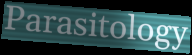
Parasitology